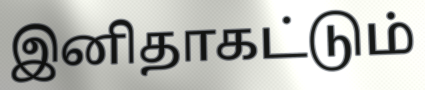
இனிதாகட்டும்